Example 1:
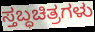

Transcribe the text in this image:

ಸ್ತಬ್ಧಚಿತ್ರಗಳು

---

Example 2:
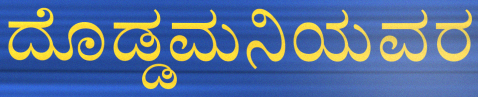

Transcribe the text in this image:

ದೊಡ್ಡಮನಿಯವರ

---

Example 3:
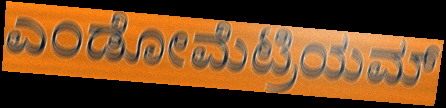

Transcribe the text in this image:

ಎಂಡೋಮೆಟ್ರಿಯಮ್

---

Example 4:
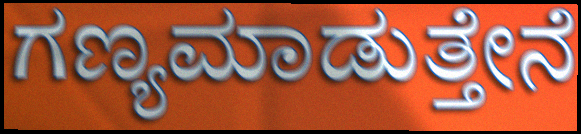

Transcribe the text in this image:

ಗಣ್ಯಮಾಡುತ್ತೇನೆ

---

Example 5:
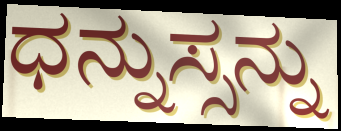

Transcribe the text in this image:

ಧನ್ನುಸ್ಸನ್ನು